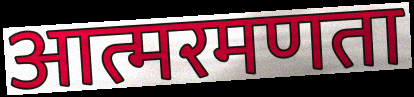
आत्मरमणता